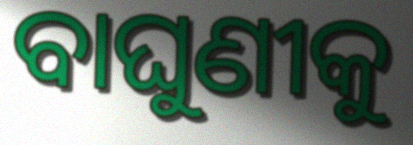
ବାଘୁଣୀକୁ